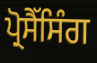
ਪ੍ਰੋਸੈੱਸਿੰਗ